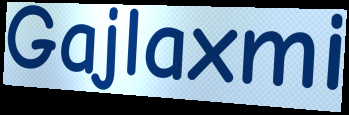
Gajlaxmi